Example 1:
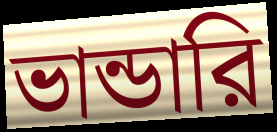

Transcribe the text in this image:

ভান্ডারি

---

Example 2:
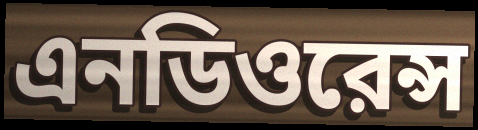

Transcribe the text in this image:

এনডিওরেন্স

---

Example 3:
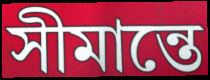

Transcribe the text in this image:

সীমান্তে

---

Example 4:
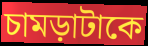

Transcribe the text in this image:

চামড়াটাকে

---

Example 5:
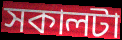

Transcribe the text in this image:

সকালটা